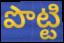
పొట్టి